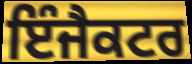
ਇੰਜੈਕਟਰ